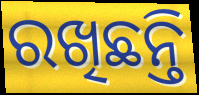
ରଖିଛନ୍ତି